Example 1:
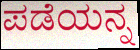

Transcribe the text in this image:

ಪಡೆಯನ್ನ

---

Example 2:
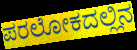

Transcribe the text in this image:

ಪರಲೋಕದಲ್ಲಿನ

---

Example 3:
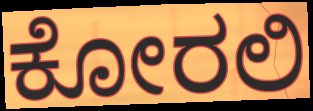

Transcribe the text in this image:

ಕೋರಲಿ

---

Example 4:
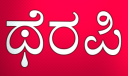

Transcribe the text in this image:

ಥೆರಪಿ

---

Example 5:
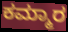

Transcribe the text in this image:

ಕಮ್ಮಾರ